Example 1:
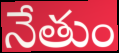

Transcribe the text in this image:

నేతుం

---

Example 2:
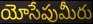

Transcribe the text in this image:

యోసేపుమీరు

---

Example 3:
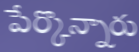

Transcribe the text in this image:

పేర్కొన్నారు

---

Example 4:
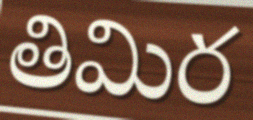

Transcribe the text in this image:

తిమిర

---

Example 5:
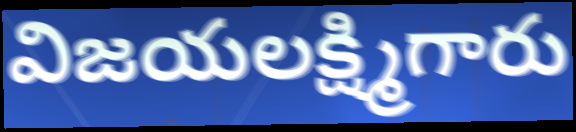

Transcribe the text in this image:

విజయలక్ష్మిగారు